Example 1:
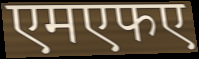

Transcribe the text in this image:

एमएफए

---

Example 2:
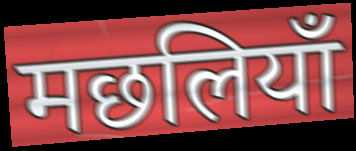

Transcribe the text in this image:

मछलियाँ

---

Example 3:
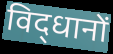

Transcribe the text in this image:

विद्धानों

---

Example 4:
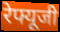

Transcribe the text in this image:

रेफ्यूजी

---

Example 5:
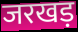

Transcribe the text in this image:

जरखड़